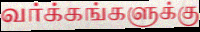
வர்க்கங்களுக்கு